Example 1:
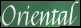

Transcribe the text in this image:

Oriental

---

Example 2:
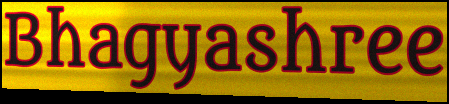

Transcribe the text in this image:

Bhagyashree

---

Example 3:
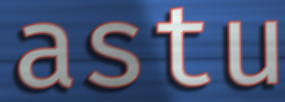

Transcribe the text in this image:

astu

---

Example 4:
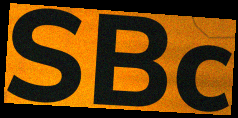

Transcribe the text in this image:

SBc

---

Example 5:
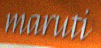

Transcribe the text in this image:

maruti